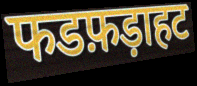
फडफ़ड़ाहट